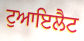
ਟੁਆਇਲੈਟ